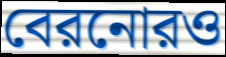
বেরনোরও